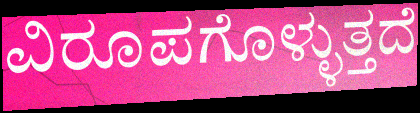
ವಿರೂಪಗೊಳ್ಳುತ್ತದೆ